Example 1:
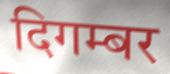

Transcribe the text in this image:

दिगम्बर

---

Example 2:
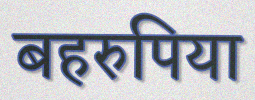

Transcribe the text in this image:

बहरुपिया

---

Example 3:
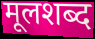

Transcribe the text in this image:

मूलशब्द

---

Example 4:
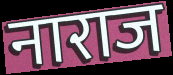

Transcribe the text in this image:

नाराज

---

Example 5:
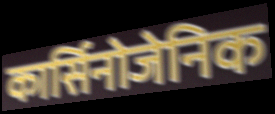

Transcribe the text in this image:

कार्सिनोजेनिक